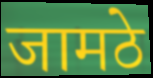
जामठे